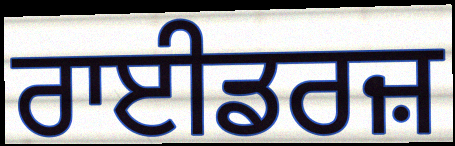
ਰਾਈਡਰਜ਼